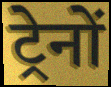
ट्रेनों